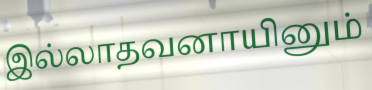
இல்லாதவனாயினும்